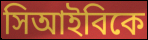
সিআইবিকে